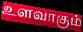
உளவாகும்